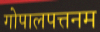
गोपालपत्तनम